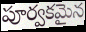
పూర్వకమైన